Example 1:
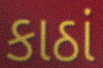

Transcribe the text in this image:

કાઠાં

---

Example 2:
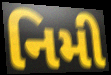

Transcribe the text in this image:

નિમી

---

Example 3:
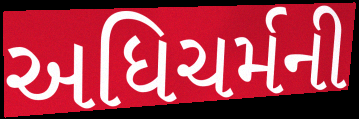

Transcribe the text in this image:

અધિચર્મની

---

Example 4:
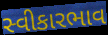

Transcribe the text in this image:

સ્વીકારભાવ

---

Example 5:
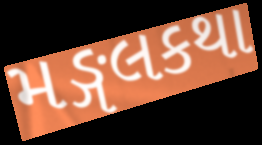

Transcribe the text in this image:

મઙ્ગલકથા